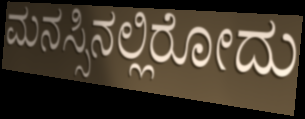
ಮನಸ್ಸಿನಲ್ಲಿರೋದು